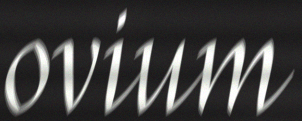
ovium